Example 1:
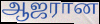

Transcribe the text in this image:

ஆஜரான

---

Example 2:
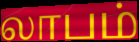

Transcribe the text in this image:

லாபம்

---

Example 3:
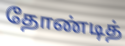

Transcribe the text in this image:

தோண்டித்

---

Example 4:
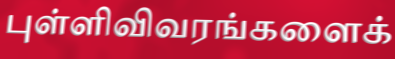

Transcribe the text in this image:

புள்ளிவிவரங்களைக்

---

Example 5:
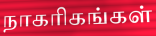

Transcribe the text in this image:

நாகரிகங்கள்